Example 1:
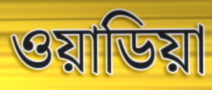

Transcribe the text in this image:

ওয়াডিয়া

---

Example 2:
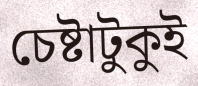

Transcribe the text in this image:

চেষ্টাটুকুই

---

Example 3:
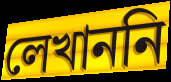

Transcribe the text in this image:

লেখাননি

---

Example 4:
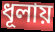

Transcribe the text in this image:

ধূলায়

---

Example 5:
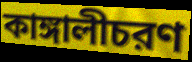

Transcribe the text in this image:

কাঙ্গালীচরণ